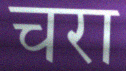
चरा